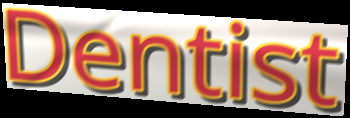
Dentist